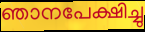
ഞാനപേക്ഷിച്ചു